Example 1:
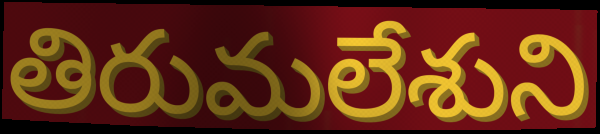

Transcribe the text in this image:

తిరుమలేశుని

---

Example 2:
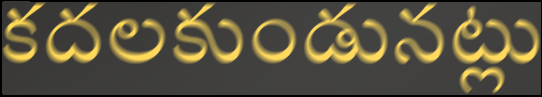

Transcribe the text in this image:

కదలకుండునట్లు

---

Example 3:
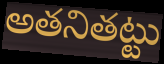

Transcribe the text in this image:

అతనితట్టు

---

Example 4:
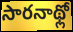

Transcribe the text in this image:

సారనాథ్లో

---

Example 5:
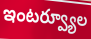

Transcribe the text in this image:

ఇంటర్వ్యూల